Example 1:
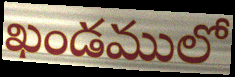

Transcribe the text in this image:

ఖండములో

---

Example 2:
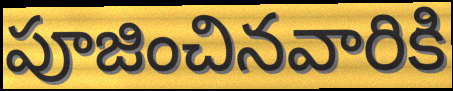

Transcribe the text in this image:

పూజించినవారికి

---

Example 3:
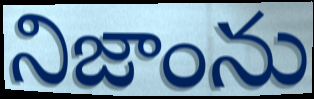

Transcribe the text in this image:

నిజాంను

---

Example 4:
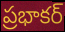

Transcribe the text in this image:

ప్రభాకర్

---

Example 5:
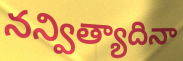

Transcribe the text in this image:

నన్విత్యాదినా